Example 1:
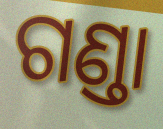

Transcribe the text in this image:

ଗଣ୍ଡା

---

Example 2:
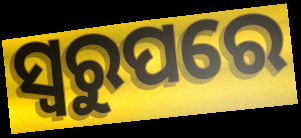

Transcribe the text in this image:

ସ୍ୱରୁପରେ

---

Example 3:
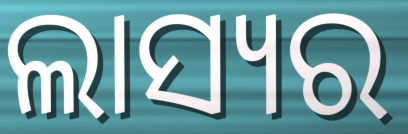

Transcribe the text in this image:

ଲାସ୍ୟର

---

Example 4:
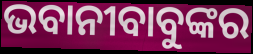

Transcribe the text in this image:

ଭବାନୀବାବୁଙ୍କର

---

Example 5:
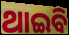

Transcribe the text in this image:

ଥାଇବି